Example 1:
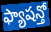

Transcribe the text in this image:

ఫ్యాషన్తో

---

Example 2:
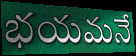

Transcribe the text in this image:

భయమనే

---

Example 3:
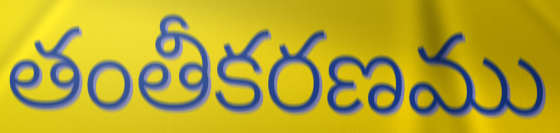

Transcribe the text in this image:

తంతీకరణము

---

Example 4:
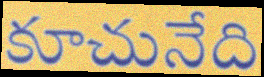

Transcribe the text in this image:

కూచునేది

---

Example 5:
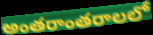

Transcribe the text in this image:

అంతరాంతరాలలో